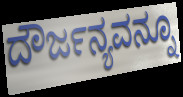
ದೌರ್ಜನ್ಯವನ್ನೂ